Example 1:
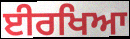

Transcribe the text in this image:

ਈਰਖਿਆ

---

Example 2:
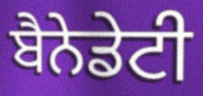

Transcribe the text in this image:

ਬੈਨੇਡੇਟੀ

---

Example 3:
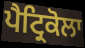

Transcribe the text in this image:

ਪੈਟ੍ਰਿਕੋਲਾ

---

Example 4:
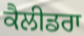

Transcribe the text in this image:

ਕੈਲੀਡਰਾ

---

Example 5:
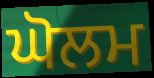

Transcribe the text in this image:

ਘੋਲਮ